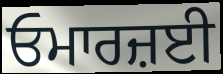
ਓਮਾਰਜ਼ਈ